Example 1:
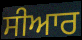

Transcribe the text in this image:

ਸੀਆਰ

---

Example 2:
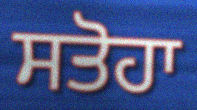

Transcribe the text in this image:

ਸਤੋਹਾ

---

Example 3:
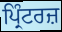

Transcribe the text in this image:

ਪ੍ਰਿੰਟਰਜ਼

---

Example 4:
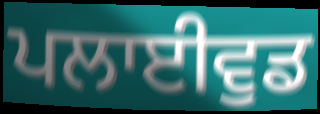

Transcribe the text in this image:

ਪਲਾਈਵੁਡ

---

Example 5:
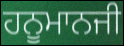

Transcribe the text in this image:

ਹਨੂਮਾਨਜੀ